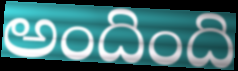
అందింది